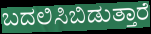
ಬದಲಿಸಿಬಿಡುತ್ತಾರೆ